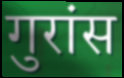
गुरांस